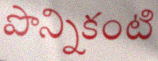
పొన్నికంటి